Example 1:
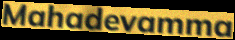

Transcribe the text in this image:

Mahadevamma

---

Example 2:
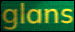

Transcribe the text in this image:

glans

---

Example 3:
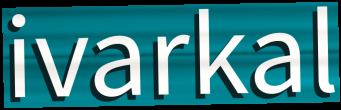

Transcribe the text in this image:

ivarkal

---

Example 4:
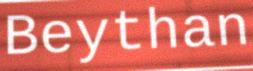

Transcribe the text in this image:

Beythan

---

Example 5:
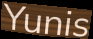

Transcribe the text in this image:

Yunis